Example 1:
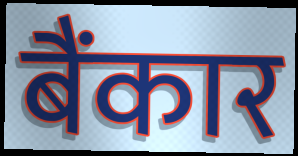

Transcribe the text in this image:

बैंकार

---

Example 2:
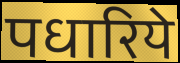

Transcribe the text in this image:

पधारिये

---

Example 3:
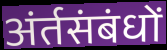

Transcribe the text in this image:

अंर्तसंबंधों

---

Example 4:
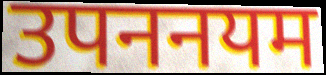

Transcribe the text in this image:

उपननयम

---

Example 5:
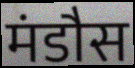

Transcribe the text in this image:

मंडौस